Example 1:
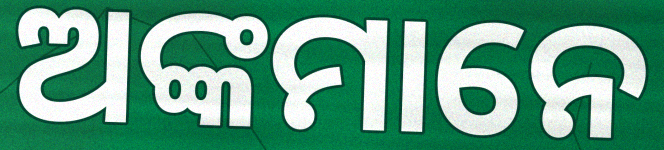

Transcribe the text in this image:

ଅଙ୍କମାନେ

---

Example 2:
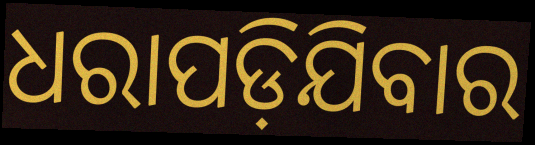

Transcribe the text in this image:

ଧରାପଡ଼ିଯିବାର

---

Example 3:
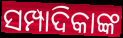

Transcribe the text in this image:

ସମ୍ପାଦିକାଙ୍କ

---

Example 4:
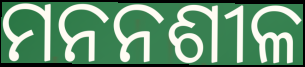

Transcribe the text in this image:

ମନନଶୀଳ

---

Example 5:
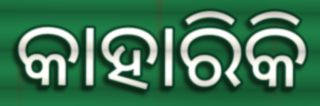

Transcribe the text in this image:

କାହାରିକି